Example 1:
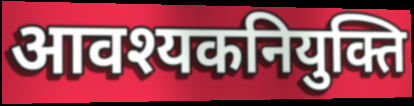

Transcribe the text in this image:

आवश्यकनियुक्ति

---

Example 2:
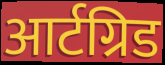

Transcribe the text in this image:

आर्टग्रिड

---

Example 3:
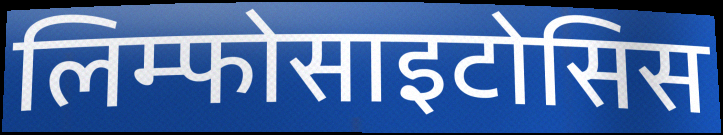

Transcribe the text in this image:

लिम्फोसाइटोसिस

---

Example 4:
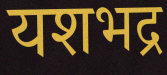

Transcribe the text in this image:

यशभद्र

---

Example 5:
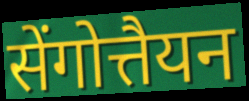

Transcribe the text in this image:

सेंगोत्तैयन